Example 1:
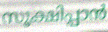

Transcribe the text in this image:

സൂക്ഷിപ്പാൻ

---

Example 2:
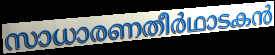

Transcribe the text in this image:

സാധാരണതീർഥാടകൻ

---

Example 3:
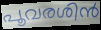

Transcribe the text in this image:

പൂവരശിൻ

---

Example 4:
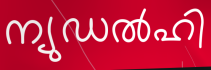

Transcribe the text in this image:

ന്യുഡൽഹി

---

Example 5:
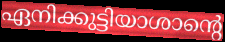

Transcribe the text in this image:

ഏനിക്കുട്ടിയാശാന്റെ